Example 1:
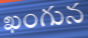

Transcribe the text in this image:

ఖంగున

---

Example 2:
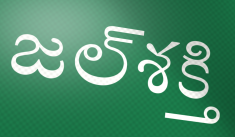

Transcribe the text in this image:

జల్‌శక్తి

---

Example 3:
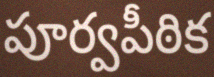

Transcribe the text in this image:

పూర్వపీఠిక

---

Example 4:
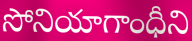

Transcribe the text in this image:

సోనియాగాంధీని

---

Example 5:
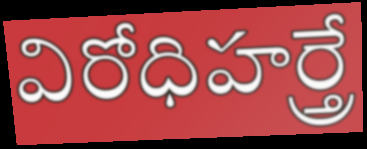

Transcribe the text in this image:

విరోధిహర్త్రే